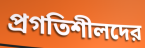
প্রগতিশীলদের